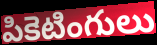
పికెటింగులు